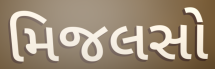
મિજલસો